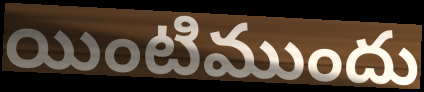
యింటిముందు